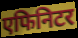
एफिनिटर